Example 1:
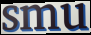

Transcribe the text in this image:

smu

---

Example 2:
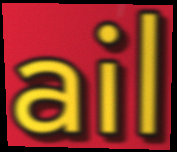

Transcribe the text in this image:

ail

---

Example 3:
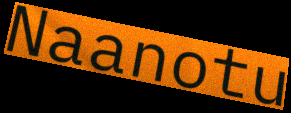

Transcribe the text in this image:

Naanotu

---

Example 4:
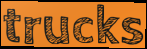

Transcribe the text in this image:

trucks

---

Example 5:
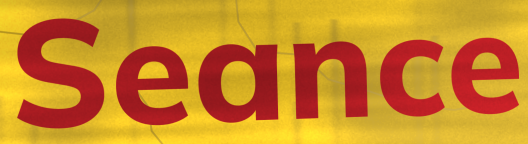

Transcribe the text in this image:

Seance